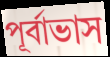
পূৰ্বাভাস